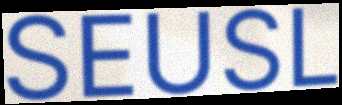
SEUSL